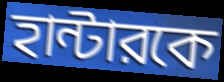
হান্টারকে